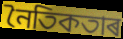
নৈতিকতাৰ